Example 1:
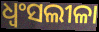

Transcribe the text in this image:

ଧ୍ୱଂସଲୀଳା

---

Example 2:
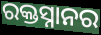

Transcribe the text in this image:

ରକ୍ତସ୍ନାନର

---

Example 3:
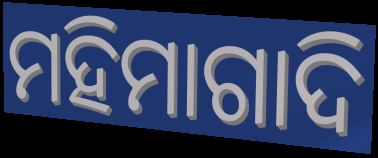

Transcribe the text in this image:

ମହିମାଗାଦି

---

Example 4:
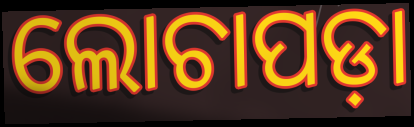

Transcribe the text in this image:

ଲୋଚାପଡ଼ା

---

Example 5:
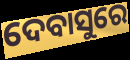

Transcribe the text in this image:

ଦେବାସୁରେ